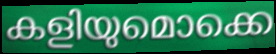
കളിയുമൊക്കെ